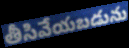
తీసివేయబడును